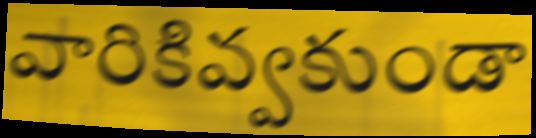
వారికివ్వకుండా